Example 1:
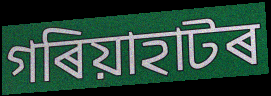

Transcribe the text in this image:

গৰিয়াহাটৰ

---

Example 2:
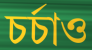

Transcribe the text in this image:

চৰ্চাও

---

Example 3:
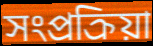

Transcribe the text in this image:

সংপ্ৰক্ৰিয়া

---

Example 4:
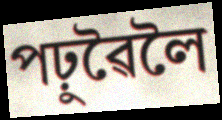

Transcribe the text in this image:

পঢ়ুৱৈলৈ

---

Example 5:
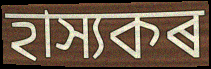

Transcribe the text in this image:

হাস্যকৰ